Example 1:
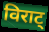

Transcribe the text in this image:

विराट्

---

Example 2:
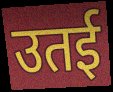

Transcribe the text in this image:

उतई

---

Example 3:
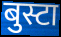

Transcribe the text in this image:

बुस्टा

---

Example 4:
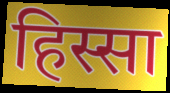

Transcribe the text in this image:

हिस्सा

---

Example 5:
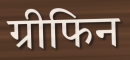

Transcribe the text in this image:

ग्रीफिन